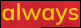
always